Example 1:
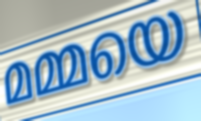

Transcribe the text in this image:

മമ്മയെ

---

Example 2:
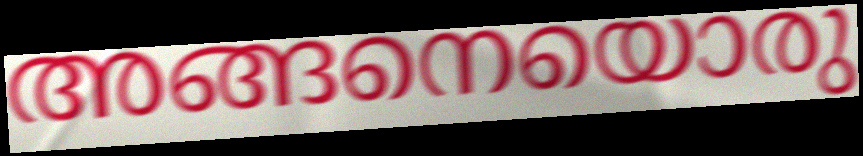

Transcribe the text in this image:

അങ്ങനെയൊരു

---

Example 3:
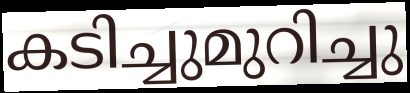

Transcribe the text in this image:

കടിച്ചുമുറിച്ചു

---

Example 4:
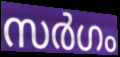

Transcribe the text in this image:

സർഗം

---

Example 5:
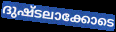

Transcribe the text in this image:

ദുഷ്ടലാക്കോടെ